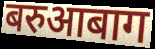
बरुआबाग